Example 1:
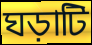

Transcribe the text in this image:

ঘড়াটি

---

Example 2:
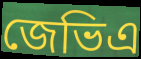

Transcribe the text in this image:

জেভিএ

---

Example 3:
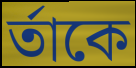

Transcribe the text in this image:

র্তাকে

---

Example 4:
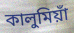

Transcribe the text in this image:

কালুমিয়াঁ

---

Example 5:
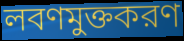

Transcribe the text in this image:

লবণমুক্তকরণ